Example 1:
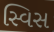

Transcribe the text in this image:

સ્વિસ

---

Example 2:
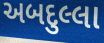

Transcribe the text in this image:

અબદુલ્લા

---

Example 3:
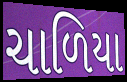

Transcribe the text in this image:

ચાળિયા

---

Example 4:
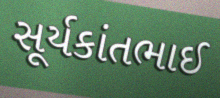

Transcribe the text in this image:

સૂર્યકાંતભાઈ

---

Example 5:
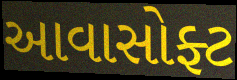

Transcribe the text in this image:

આવાસોફ્ટ